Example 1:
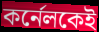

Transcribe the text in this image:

কর্নেলকেই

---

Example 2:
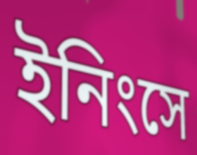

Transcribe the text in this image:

ইনিংসে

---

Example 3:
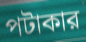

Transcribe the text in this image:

পটাকার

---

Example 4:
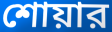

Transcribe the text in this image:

শোয়ার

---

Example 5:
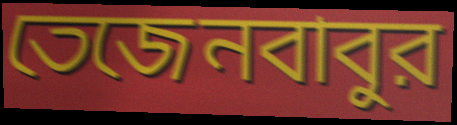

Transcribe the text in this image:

তেজেনবাবুর